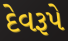
દેવરૂપે